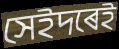
সেইদৰেই